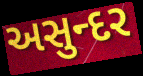
અસુન્દર